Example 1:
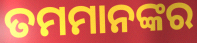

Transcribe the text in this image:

ତମମାନଙ୍କର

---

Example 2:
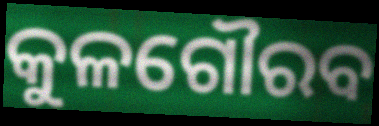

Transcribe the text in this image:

କୁଳଗୌରବ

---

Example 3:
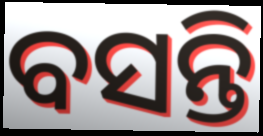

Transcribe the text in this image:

ବସନ୍ତି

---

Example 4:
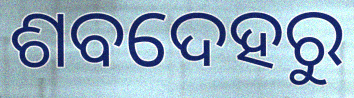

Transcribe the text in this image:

ଶବଦେହରୁ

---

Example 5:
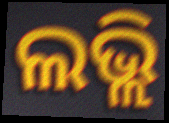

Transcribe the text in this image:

ଲଭ୍ଲି